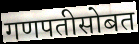
गणपतीसोबत